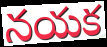
నయక